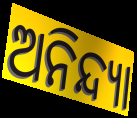
ଅନିନ୍ଦ୍ୟା